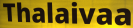
Thalaivaa